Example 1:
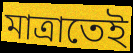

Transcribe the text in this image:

মাত্রাতেই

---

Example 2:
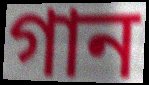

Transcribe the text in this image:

গান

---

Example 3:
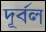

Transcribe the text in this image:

দূর্বল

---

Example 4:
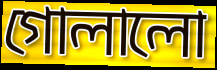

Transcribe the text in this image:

গোলালো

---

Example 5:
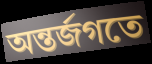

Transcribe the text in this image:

অন্তর্জগতে